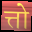
त्तो